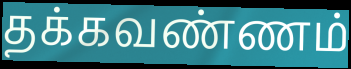
தக்கவண்ணம்